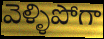
వెళ్ళిపోగా